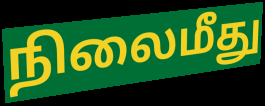
நிலைமீது